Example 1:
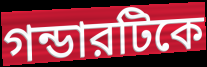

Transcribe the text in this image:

গন্ডারটিকে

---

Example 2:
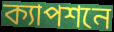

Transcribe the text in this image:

ক্যাপশনে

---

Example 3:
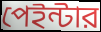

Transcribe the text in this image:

পেইন্টার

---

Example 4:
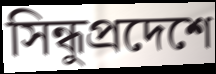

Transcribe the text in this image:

সিন্ধুপ্রদেশে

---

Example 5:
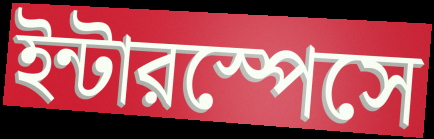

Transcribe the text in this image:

ইন্টারস্পেসে